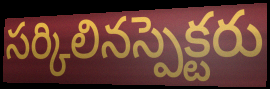
సర్కిలినస్పెక్టరు